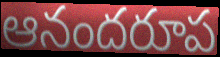
ఆనందరూప